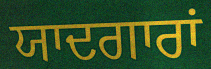
ਯਾਦਗਾਰਾਂ